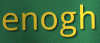
enogh